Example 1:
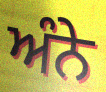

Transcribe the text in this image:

ਅੰਨੇ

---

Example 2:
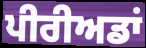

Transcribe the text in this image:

ਪੀਰੀਅਡਾਂ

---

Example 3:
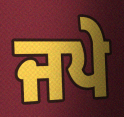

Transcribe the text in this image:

ਜਪੇ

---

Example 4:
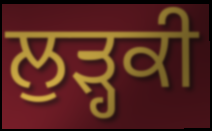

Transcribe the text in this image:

ਲੁੜ੍ਹਕੀ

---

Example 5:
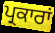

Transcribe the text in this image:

ਪ੍ਰਕਾਰਾਂ